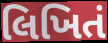
લિખિતં